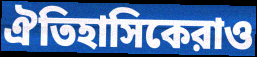
ঐতিহাসিকেরাও